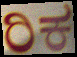
ರಿಕ